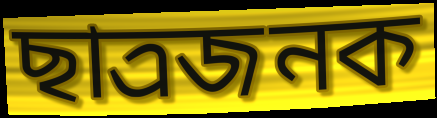
ছাত্ৰজনক